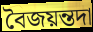
বৈজয়ন্তদা